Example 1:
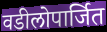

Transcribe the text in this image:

वडीलोपार्जित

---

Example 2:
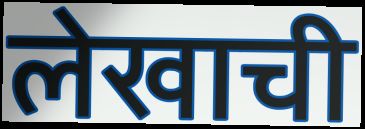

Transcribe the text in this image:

लेखाची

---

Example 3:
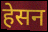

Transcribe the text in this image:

हेसन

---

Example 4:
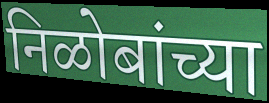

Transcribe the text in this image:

निळोबांच्या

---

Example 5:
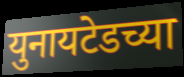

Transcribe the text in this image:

युनायटेडच्या